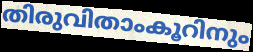
തിരുവിതാംകൂറിനും